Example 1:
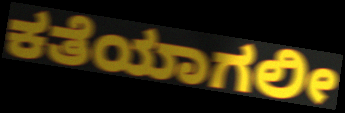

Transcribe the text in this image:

ಕತೆಯಾಗಲೀ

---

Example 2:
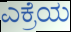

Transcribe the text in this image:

ಎಕ್ರೆಯ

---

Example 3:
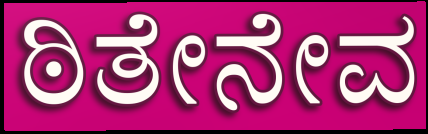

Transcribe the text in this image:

ಠಿತೇನೇವ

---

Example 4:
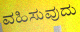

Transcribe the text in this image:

ವಹಿಸುವುದು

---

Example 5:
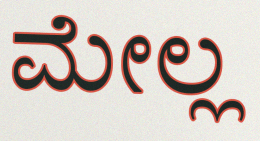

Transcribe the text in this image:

ಮೇಲ್ಲ